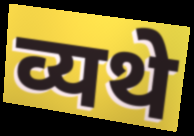
व्यथे